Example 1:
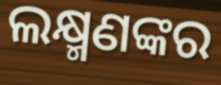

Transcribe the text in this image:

ଲକ୍ଷ୍ମଣଙ୍କର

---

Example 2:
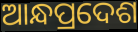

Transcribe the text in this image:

ଆନ୍ଧପ୍ରଦେଶ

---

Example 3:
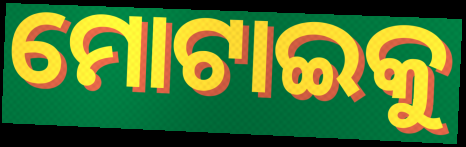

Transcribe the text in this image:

ମୋଟାଇକୁ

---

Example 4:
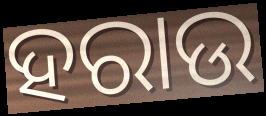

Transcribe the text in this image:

ହରାଉ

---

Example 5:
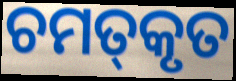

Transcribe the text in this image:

ଚମତ୍‍କୃତ